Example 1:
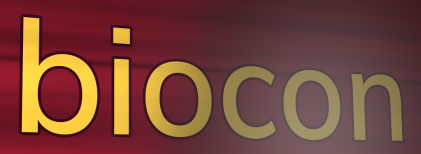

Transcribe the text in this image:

biocon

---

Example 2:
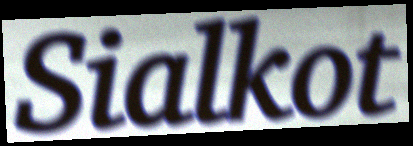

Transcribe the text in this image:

Sialkot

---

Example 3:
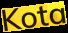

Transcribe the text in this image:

Kota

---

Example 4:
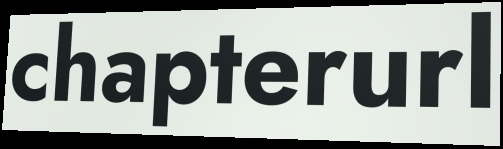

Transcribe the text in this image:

chapterurl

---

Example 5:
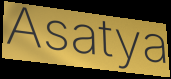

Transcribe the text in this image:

Asatya